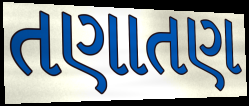
તણાતણ